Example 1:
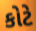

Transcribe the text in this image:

કોટે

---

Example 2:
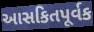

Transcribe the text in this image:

આસકિતપૂર્વક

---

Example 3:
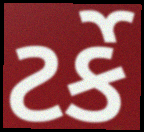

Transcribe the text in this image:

ટર્કે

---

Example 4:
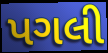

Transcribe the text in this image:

પગલી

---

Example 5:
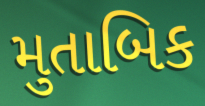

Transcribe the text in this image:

મુતાબિક